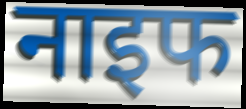
नाइफ